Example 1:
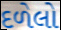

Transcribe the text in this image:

દળેલો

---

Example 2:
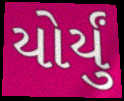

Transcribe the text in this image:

યોર્યું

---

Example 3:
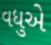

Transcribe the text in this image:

વધુએ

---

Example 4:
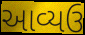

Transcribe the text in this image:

આવ્યઉ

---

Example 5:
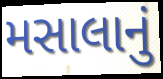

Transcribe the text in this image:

મસાલાનું